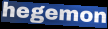
hegemon